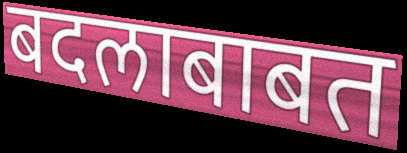
बदलाबाबत